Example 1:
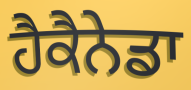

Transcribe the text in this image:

ਹੈਕੈਨੇਡਾ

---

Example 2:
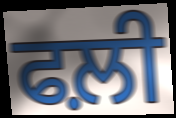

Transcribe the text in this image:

ਫਲ਼ੀ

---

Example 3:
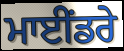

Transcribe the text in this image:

ਮਾਈਂਡਰੇ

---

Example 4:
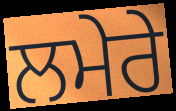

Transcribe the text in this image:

ਲਮੇਰੇ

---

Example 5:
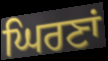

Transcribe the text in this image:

ਘਿਰਣਾਂ